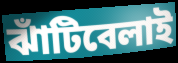
ঝাঁটিবেলাই